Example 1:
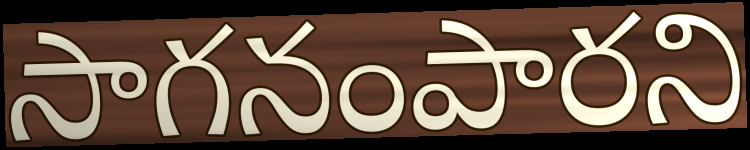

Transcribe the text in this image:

సాగనంపారని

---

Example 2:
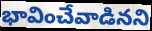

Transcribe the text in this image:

భావించేవాడినని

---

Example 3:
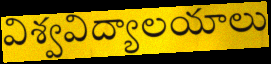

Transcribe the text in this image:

విశ్వవిద్యాలయాలు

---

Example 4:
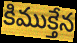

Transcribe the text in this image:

కిముక్తేన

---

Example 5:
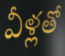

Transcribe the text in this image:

వీళ్లతో